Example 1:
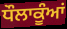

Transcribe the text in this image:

ਧੌਲਾਕੂੰਆਂ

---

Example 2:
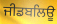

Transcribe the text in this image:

ਜੀਡਬਲਿਊ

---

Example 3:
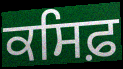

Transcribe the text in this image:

ਕਸਿਫ਼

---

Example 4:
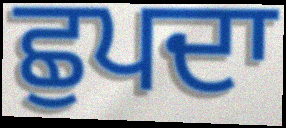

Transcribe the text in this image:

ਛੁਪਦਾ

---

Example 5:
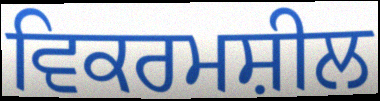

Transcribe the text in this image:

ਵਿਕਰਮਸ਼ੀਲ